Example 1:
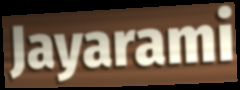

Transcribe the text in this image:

Jayarami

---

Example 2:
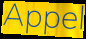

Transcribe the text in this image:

Appel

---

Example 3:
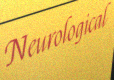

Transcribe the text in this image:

Neurological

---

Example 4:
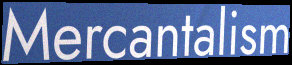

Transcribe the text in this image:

Mercantalism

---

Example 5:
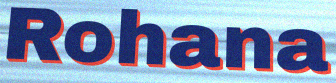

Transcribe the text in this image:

Rohana